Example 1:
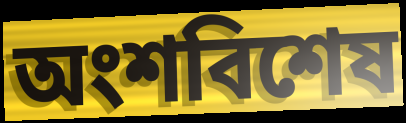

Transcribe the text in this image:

অংশবিশেষ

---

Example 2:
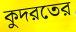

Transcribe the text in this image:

কুদরতের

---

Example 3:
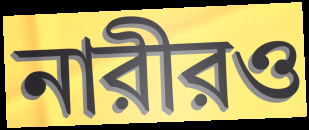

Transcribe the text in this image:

নারীরও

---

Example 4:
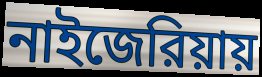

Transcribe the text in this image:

নাইজেরিয়ায়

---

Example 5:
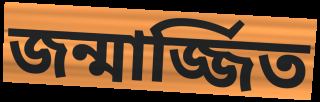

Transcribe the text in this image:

জন্মার্জ্জিত